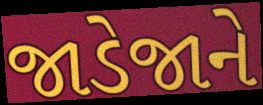
જાડેજાને